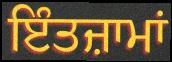
ਇੰਤਜ਼ਾਮਾਂ